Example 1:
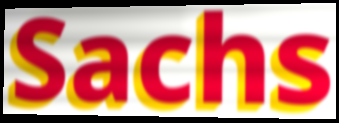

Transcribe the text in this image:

Sachs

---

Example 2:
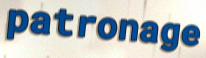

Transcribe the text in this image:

patronage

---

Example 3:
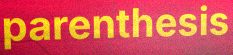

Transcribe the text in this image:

parenthesis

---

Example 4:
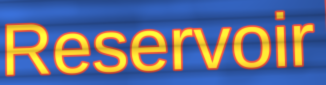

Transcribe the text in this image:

Reservoir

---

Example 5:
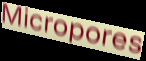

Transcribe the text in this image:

Micropores